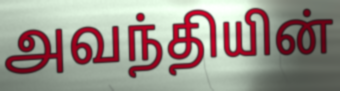
அவந்தியின்